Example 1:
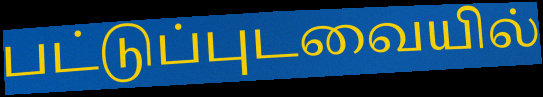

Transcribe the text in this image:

பட்டுப்புடவையில்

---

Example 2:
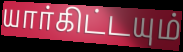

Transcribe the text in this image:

யார்கிட்டயும்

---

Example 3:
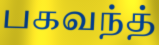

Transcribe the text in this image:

பகவந்த்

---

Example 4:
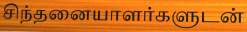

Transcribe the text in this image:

சிந்தனையாளர்களுடன்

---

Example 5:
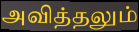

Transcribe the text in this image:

அவித்தலும்